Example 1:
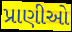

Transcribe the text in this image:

પ્રાણીઓ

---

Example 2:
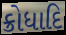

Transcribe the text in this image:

ક્રોધાદિ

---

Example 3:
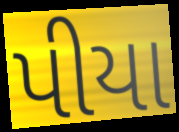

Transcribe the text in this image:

પીયા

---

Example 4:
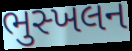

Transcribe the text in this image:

ભુસ્ખલન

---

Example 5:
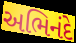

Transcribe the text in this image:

અભિનંદે